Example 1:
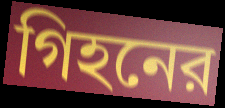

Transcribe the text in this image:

গিহনের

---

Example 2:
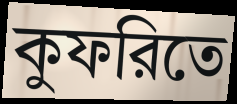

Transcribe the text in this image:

কুফরিতে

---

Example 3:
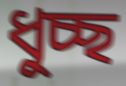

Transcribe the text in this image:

ধুচ্ছ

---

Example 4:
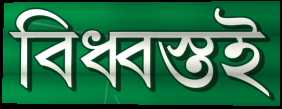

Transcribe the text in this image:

বিধ্বস্তই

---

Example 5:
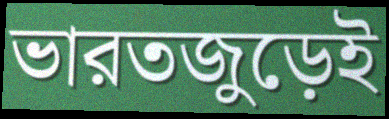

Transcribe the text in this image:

ভারতজুড়েই